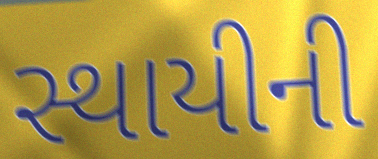
સ્થાયીની